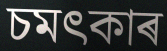
চমৎকাৰ